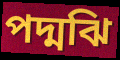
পদ্মঝি